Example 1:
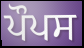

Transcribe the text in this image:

ਪੌਪਸ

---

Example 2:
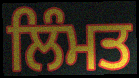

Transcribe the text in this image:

ਲਿੰਮਤ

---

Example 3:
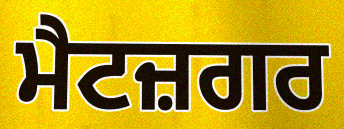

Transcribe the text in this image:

ਮੈਟਜ਼ਗਰ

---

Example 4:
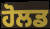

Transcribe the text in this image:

ਹੋਲਡ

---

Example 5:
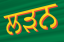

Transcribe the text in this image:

ਲੜਨ